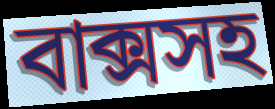
বাক্সসহ